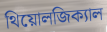
থিয়োলজিক্যাল